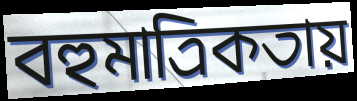
বহুমাত্রিকতায়